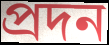
প্ৰদন